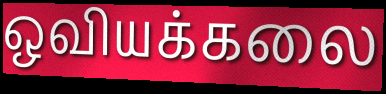
ஒவியக்கலை